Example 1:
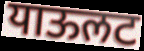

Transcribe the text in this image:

याऊलट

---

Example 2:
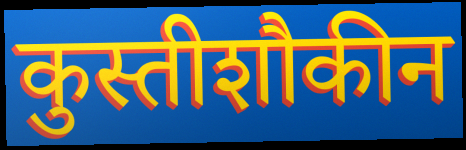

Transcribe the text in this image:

कुस्तीशौकीन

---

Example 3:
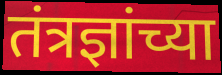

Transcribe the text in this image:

तंत्रज्ञांच्या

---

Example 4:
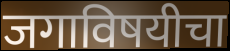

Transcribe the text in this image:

जगाविषयीचा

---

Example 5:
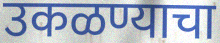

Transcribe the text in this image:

उकळण्याचा